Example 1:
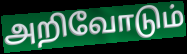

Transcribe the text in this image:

அறிவோடும்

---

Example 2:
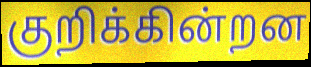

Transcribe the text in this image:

குறிக்கின்றன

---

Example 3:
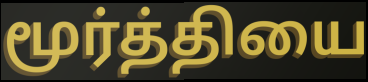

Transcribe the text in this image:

மூர்த்தியை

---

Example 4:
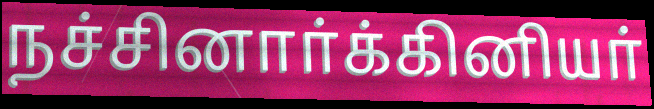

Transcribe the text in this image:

நச்சினார்க்கினியர்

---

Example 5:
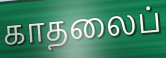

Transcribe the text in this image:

காதலைப்